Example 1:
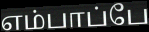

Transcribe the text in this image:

எம்பாப்பே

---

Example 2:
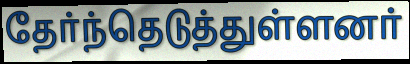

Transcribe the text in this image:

தேர்ந்தெடுத்துள்ளனர்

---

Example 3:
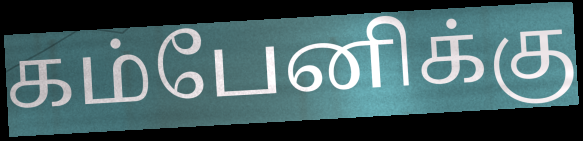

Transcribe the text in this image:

கம்பேனிக்கு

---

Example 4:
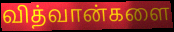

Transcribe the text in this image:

வித்வான்களை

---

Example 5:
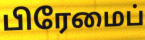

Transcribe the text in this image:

பிரேமைப்